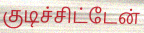
குடிச்சிட்டேன்